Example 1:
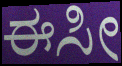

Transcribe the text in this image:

ಈಸೀ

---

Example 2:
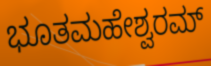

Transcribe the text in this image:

ಭೂತಮಹೇಶ್ವರಮ್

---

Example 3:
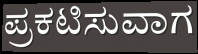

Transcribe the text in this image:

ಪ್ರಕಟಿಸುವಾಗ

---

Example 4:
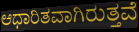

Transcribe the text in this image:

ಆಧಾರಿತವಾಗಿರುತ್ತವೆ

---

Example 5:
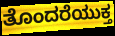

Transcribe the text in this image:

ತೊಂದರೆಯುಕ್ತ